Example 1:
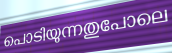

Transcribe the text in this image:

പൊടിയുന്നതുപോലെ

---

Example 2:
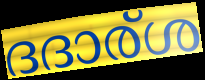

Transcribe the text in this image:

ദദാര്ശ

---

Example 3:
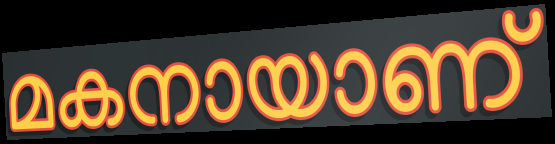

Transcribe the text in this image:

മകനായാണ്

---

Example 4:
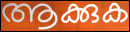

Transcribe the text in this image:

ആക്കുക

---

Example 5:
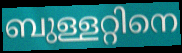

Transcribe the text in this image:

ബുള്ളറ്റിനെ